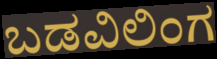
ಬಡವಿಲಿಂಗ